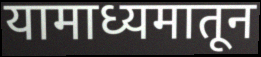
यामाध्यमातून